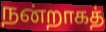
நன்றாகத்